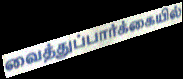
வைத்துப்பார்க்கையில்